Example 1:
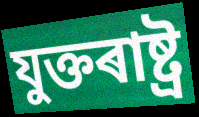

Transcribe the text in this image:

যুক্তৰাষ্ট্ৰ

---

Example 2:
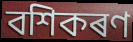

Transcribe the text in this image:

বশিকৰণ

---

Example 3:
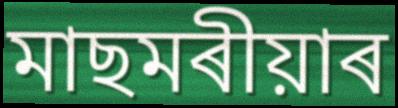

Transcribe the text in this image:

মাছমৰীয়াৰ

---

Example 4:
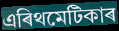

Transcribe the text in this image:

এৰিথমেটিকাৰ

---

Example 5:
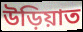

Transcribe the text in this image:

উড়িয়াত